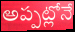
అప్పట్లోనే